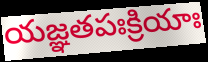
యజ్ఞతపఃక్రియాః